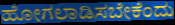
ಹೋಗಲಾಡಿಸಬೇಕೆಂದು